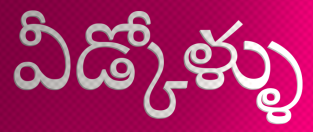
వీడ్కోళ్ళు